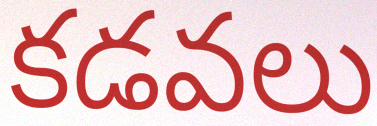
కడవలు